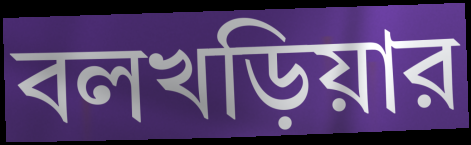
বলখড়িয়ার